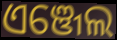
ଏଞ୍ଜେଲ